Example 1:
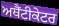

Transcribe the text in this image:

ਅਥੈਂਟੀਕੇਟਰ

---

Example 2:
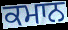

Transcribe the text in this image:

ਕਮਾਨ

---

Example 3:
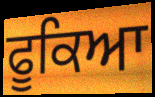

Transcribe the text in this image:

ਫੂਕਿਆ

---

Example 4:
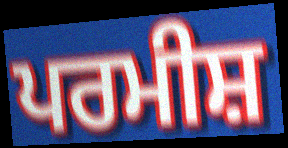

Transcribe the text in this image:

ਪਰਮੀਸ਼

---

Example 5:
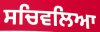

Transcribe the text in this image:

ਸਚਿਵਲਿਆ